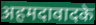
अहमदावादके